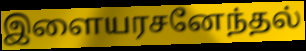
இளையரசனேந்தல்